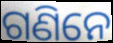
ଗଣିନେ